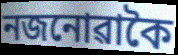
নজনোৱাকৈ